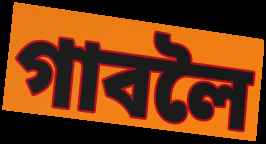
গাবলৈ